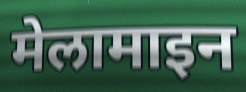
मेलामाइन